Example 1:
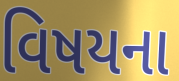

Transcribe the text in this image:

વિષયના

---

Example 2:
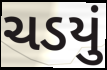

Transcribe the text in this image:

ચડયું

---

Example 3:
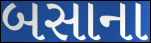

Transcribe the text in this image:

બસાના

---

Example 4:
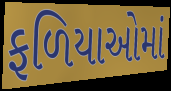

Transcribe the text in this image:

ફળિયાઓમાં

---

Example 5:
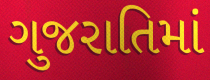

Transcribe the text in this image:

ગુજરાતિમાં